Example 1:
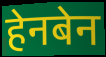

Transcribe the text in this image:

हेनबेन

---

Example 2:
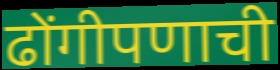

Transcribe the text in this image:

ढोंगीपणाची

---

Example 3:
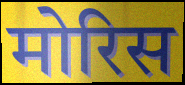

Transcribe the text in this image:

मोरिस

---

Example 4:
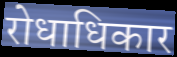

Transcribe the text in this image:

रोधाधिकार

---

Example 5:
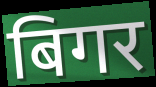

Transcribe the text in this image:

बिगर